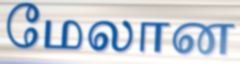
மேலான